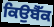
ਕਿਉਬੈੱਕ